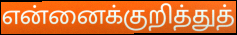
என்னைக்குறித்துத்